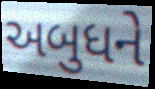
અબુધને